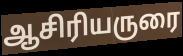
ஆசிரியருரை